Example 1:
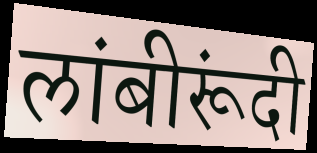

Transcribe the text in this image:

लांबीरूंदी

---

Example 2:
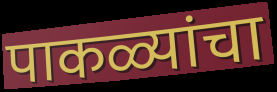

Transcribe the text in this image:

पाकळ्यांचा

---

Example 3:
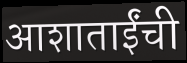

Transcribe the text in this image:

आशाताईंची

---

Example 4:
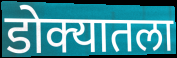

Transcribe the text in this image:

डोक्‍यातला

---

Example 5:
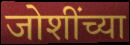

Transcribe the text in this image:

जोशींच्या